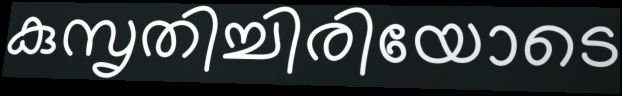
കുസൃതിച്ചിരിയോടെ